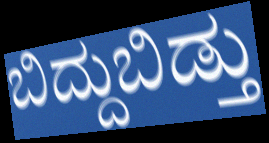
ಬಿದ್ದುಬಿಡ್ತು